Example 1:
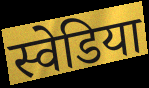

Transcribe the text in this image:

स्वेडिया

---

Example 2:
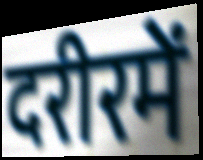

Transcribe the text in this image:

दरीरमें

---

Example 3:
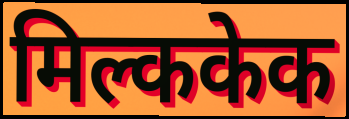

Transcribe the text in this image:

मिल्ककेक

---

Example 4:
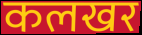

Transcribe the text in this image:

कलखर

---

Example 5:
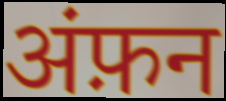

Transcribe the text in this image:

अंफ़न